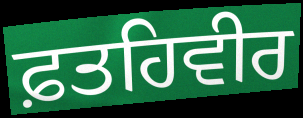
ਫ਼ਤਹਿਵੀਰ